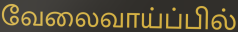
வேலைவாய்ப்பில்